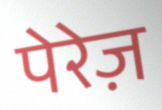
पेरेज़